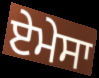
ਏਮੇਸਾ